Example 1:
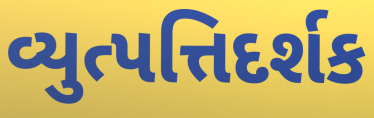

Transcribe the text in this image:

વ્યુત્પત્તિદર્શક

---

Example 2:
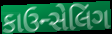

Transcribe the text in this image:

કાઉન્સેલિંગ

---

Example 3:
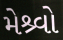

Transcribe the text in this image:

મેશ્ર્વો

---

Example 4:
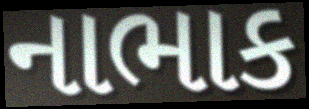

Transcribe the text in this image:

નાભાક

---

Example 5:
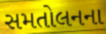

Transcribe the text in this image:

સમતોલનના